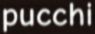
pucchi